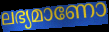
ലഭ്യമാണോ